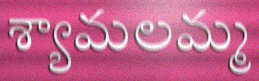
శ్యామలమ్మ